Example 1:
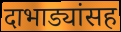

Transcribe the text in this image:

दाभाड्यांसह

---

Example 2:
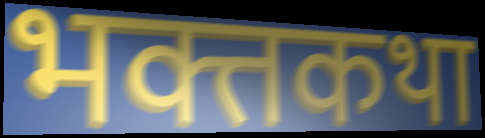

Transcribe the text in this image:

भक्तकथा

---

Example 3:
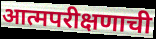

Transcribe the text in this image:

आत्मपरीक्षणाची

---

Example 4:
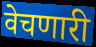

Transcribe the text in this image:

वेचणारी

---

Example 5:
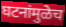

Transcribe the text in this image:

घटनांमुळेच